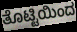
ತೊಟ್ಟಿಯಿಂದ